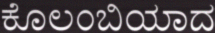
ಕೊಲಂಬಿಯಾದ